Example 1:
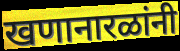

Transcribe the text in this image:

खणानारळांनी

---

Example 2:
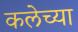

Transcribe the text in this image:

कलेच्या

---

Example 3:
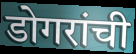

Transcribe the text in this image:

डोगरांची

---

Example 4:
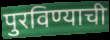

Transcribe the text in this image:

पुरविण्याची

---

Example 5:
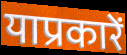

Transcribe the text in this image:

याप्रकारें